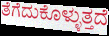
ತೆಗೆದುಕೊಳ್ಳುತ್ತದೆ